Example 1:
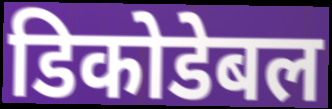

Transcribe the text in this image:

डिकोडेबल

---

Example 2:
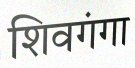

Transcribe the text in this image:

शिवगंगा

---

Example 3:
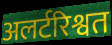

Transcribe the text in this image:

अलर्टरिश्वत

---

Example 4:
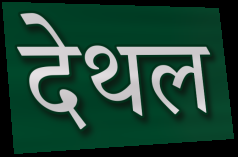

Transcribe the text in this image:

देथल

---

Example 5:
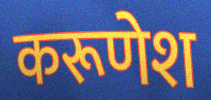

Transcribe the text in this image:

करूणेश